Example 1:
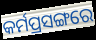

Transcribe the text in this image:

କର୍ମପ୍ରସଙ୍ଗରେ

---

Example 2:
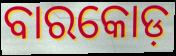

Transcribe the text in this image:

ବାରକୋଡ଼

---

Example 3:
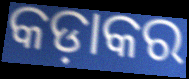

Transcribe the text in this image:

କଡ଼ାକର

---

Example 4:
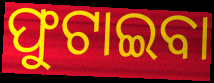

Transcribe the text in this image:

ଫୁଟାଇବା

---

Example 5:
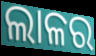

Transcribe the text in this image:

ଲାଳର